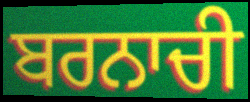
ਬਰਨਾਚੀ